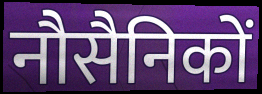
नौसैनिकों